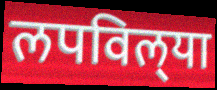
लपविल्या